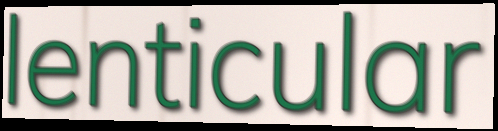
lenticular